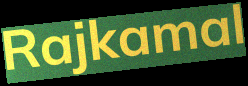
Rajkamal